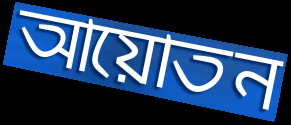
আয়োতন